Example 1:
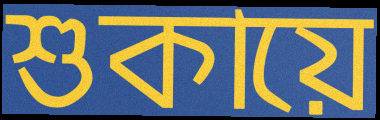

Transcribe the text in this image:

শুকায়ে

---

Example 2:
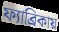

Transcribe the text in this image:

ফ্যাব্রিকায়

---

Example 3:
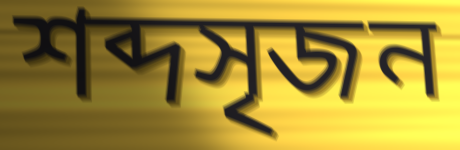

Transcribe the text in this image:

শব্দসৃজন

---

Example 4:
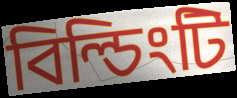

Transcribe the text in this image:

বিল্ডিংটি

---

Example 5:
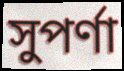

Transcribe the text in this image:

সুপর্ণা